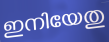
ഇനിയേതു